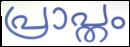
പ്രാപ്തം